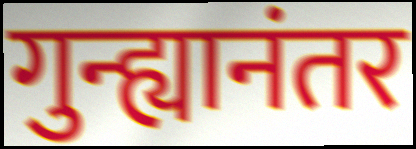
गुन्ह्यानंतर